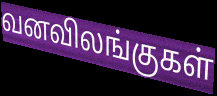
வனவிலங்குகள்